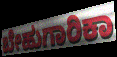
ಬೇಹುಗಾರಿಕಾ